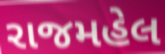
રાજમહેલ